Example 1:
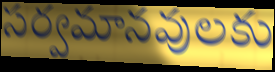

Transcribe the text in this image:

సర్వమానవులకు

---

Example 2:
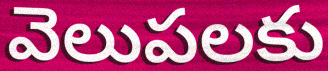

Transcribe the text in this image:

వెలుపలకు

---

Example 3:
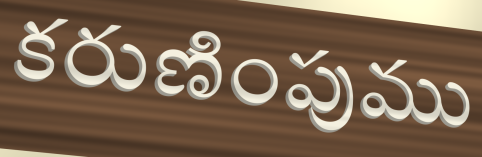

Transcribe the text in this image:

కరుణింపుము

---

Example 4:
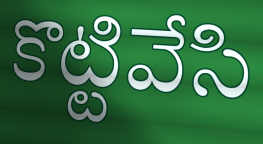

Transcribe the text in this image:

కొట్టివేసి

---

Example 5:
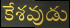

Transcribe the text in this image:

కేశవుడు